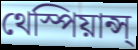
থেস্পিয়ান্স্